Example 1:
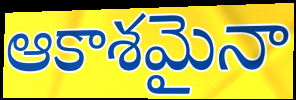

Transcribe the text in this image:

ఆకాశమైనా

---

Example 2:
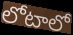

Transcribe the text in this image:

లోటాలో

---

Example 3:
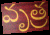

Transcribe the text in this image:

వృత్ర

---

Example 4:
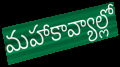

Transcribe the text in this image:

మహాకావ్యాల్లో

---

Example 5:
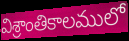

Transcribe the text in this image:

విశ్రాంతికాలములో